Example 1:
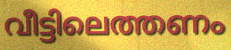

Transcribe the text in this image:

വീട്ടിലെത്തണം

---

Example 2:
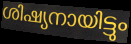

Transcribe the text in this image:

ശിഷ്യനായിട്ടും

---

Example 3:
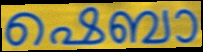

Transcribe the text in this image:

ഷെബാ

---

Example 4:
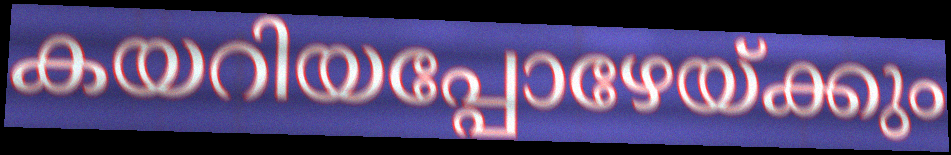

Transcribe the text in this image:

കയറിയപ്പോഴേയ്ക്കും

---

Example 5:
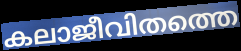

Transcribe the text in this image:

കലാജീവിതത്തെ